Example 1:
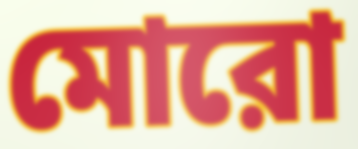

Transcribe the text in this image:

মোরো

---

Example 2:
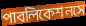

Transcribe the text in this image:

পাবলিকেশনসে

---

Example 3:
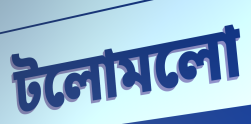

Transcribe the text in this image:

টলোমলো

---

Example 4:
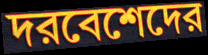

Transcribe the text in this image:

দরবেশেদের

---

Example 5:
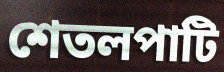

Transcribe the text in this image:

শেতলপাটি